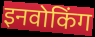
इनवोकिंग